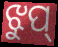
ଝୁପ୍